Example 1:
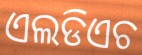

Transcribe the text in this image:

ଏଲଡିଏଚ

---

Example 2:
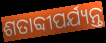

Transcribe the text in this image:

ଶତାବ୍ଦୀପର୍ଯ୍ୟନ୍ତ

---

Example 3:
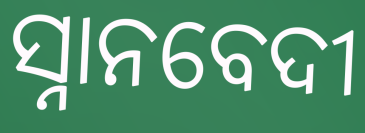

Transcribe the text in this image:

ସ୍ନାନବେଦୀ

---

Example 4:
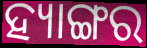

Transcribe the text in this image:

ହ୍ୟାଙ୍ଗର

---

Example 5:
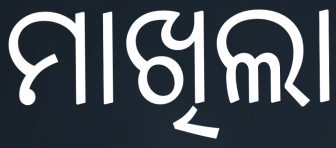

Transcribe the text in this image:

ମାଖିଲା